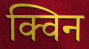
क्विन